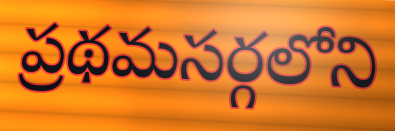
ప్రథమసర్గలోని